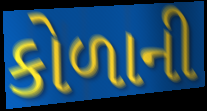
કોળાની